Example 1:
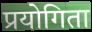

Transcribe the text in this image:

प्रयोगिता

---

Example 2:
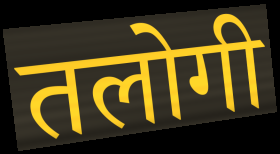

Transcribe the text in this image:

तलोगी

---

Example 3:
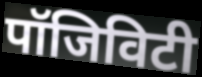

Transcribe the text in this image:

पॉजिविटी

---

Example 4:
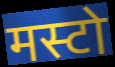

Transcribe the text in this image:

मस्टो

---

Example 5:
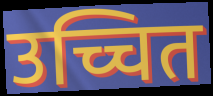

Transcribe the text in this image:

उच्चित